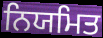
ਨਿਯਮਿਤ